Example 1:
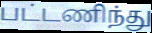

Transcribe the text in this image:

பட்டணிந்து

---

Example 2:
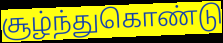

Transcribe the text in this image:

சூழ்ந்துகொண்டு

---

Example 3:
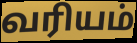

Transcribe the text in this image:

வரியம்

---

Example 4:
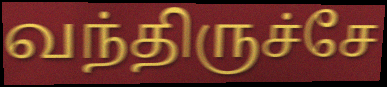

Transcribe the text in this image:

வந்திருச்சே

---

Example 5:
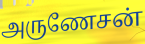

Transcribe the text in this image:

அருணேசன்